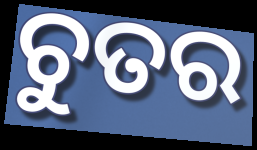
ଚୁତର